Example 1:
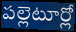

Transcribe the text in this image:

పల్లెటూర్లో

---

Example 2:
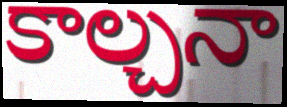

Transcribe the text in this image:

కాల్చనా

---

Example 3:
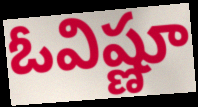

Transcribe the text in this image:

ఓవిష్ణూ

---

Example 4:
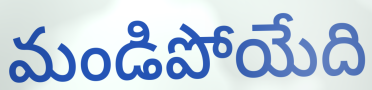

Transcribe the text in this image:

మండిపోయేది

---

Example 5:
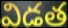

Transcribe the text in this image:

విడత